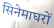
सिनेमाघरों